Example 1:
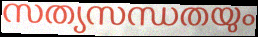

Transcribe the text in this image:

സത്യസന്ധതയും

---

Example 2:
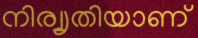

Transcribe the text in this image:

നിര്വൃതിയാണ്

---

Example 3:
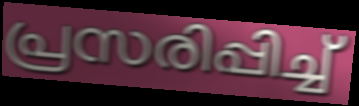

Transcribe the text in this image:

പ്രസരിപ്പിച്ച്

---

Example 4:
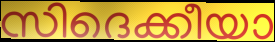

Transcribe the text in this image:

സിദെക്കീയാ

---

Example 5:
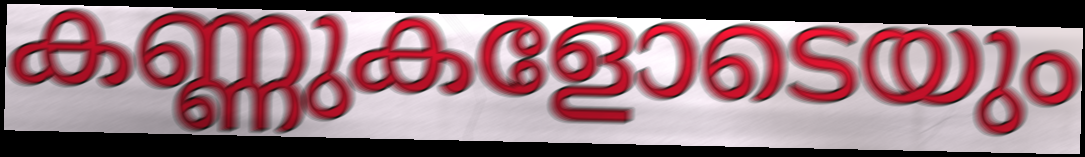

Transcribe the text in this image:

കണ്ണുകളോടെയും